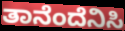
ತಾನೆಂದೆನಿಸಿ